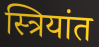
स्त्रियांत